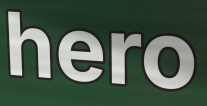
hero